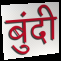
बुंदी